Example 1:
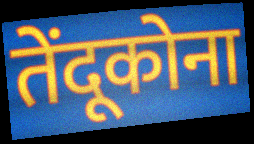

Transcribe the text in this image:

तेंदूकोना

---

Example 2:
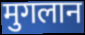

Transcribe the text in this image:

मुगलान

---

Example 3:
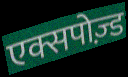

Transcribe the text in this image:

एक्सपोज़्ड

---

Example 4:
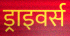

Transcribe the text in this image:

ड्राइवर्स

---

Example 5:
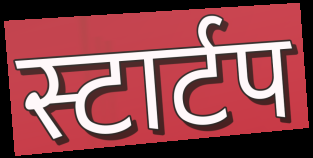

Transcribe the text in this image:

स्टार्टप